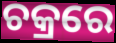
ଚକ୍ରରେ